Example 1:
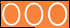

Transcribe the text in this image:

ooo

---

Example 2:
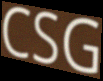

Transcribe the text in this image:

CSG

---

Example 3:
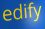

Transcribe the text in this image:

edify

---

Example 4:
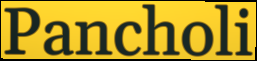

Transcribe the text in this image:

Pancholi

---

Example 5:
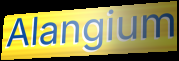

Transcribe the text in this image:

Alangium